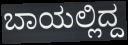
ಬಾಯಲ್ಲಿದ್ದ